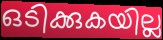
ഒടിക്കുകയില്ല